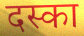
दस्का